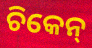
ଚିକେନ୍